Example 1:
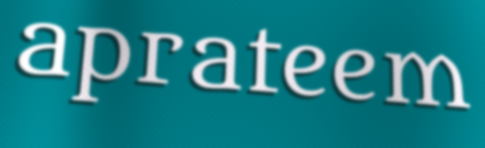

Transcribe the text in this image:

aprateem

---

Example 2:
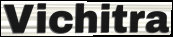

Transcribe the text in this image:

Vichitra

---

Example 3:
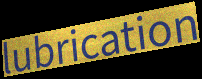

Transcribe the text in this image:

lubrication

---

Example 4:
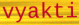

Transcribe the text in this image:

vyakti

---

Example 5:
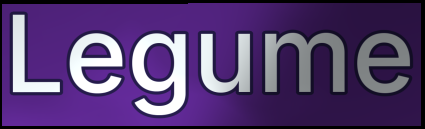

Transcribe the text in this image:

Legume